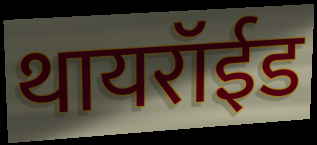
थायरॉईड